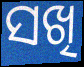
ସଖି